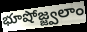
భూషోజ్జ్వలాం